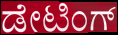
ಡೇಟಿಂಗ್